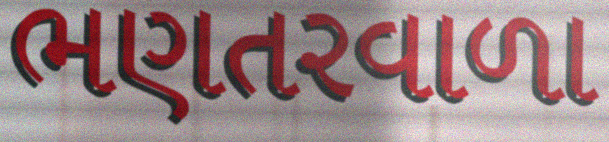
ભણતરવાળા